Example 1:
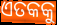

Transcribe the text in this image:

ଏତକକୁ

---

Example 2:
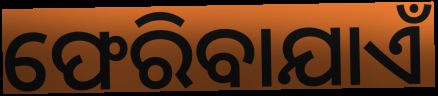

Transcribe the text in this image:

ଫେରିବାଯାଏଁ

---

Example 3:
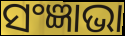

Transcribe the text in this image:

ସଂଜ୍ଞାଭା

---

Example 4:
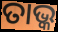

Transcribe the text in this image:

ତାଭ୍କ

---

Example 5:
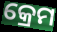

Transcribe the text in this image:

କ୍ରେମ